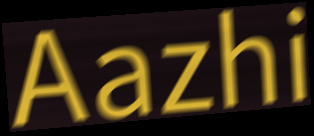
Aazhi